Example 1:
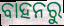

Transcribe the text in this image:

ବାହନରୁ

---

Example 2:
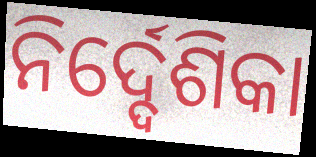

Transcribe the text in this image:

ନିର୍ଦ୍ଦେଶିକା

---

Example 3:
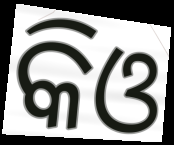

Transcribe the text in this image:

କିଓ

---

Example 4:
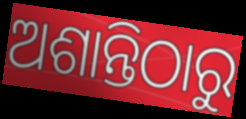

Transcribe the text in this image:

ଅଶାନ୍ତିଠାରୁ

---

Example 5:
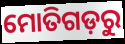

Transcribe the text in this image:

ମୋତିଗଡ଼ରୁ